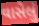
વાસેલું